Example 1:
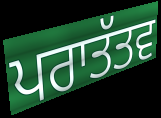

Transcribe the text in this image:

ਪਰਾਤੱਤਵ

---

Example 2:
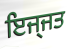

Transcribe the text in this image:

ਇਜ੍ਜਤ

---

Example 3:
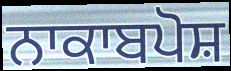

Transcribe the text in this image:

ਨਾਕਾਬਪੋਸ਼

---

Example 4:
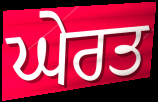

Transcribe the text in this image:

ਘੇਰਤ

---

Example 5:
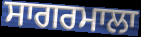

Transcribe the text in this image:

ਸਾਗਰਮਾਲਾ